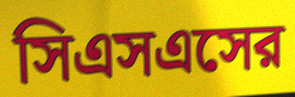
সিএসএসের